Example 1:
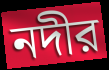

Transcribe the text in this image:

নদীর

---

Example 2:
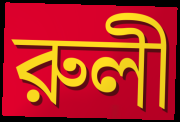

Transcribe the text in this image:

রুলী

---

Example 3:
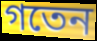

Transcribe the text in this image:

গতেন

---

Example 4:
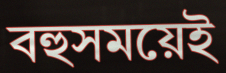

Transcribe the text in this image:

বহুসময়েই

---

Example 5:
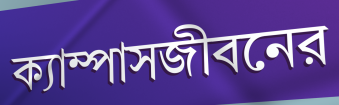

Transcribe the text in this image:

ক্যাম্পাসজীবনের